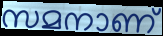
സമനാണ്